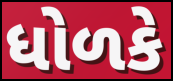
ધોળકે